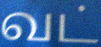
வட்